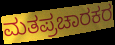
ಮತಪ್ರಚಾರಕರ